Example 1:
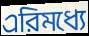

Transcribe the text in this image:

এরিমধ্যে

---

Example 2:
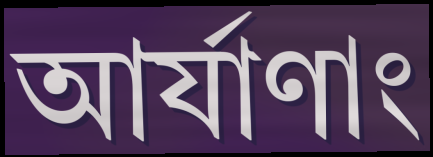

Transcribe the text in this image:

আর্যাণাং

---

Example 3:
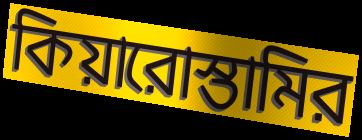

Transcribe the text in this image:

কিয়ারোস্তামির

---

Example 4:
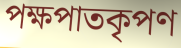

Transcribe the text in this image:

পক্ষপাতকৃপণ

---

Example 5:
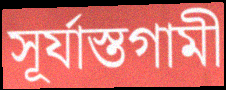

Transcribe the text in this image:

সূর্যাস্তগামী